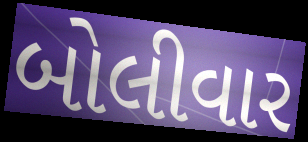
બોલીવાર